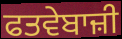
ਫਤਵੇਬਾਜ਼ੀ